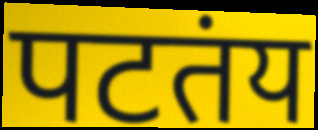
पटतंय